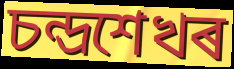
চন্দ্ৰশেখৰ